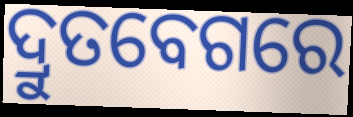
ଦ୍ରୁତବେଗରେ